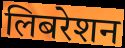
लिबरेशन